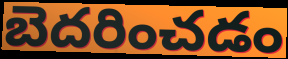
బెదరించడం